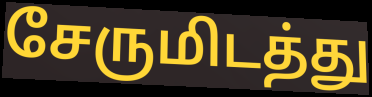
சேருமிடத்து